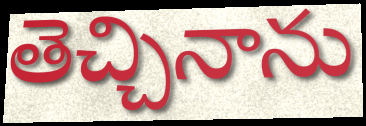
తెచ్చినాను